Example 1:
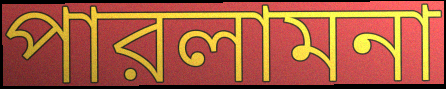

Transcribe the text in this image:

পারলামনা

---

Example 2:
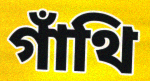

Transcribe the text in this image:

গাঁথি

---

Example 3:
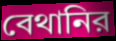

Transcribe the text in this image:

বেথানির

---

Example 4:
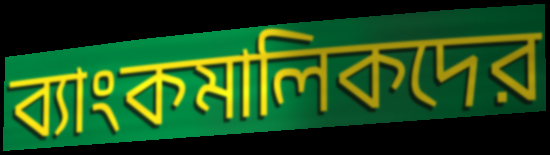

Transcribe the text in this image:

ব্যাংকমালিকদের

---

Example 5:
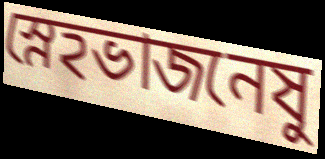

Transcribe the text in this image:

স্নেহভাজনেষু